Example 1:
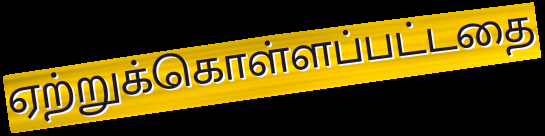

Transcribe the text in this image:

ஏற்றுக்கொள்ளப்பட்டதை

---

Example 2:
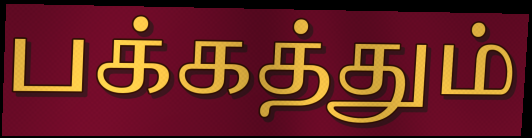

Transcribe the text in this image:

பக்கத்தும்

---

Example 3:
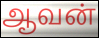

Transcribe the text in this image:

ஆவன்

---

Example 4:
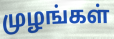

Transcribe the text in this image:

முழங்கள்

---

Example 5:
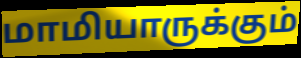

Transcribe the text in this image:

மாமியாருக்கும்